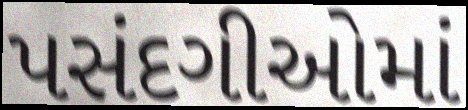
પસંદગીઓમાં